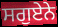
ਸਗੁਏਨੇ